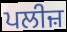
ਪਲੀਜ਼